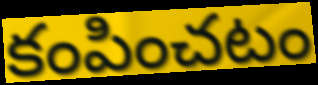
కంపించటం